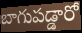
బాగుపడ్డారో